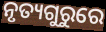
ନୃତ୍ୟଗୁରୁରେ